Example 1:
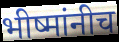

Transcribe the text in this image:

भीष्मांनीच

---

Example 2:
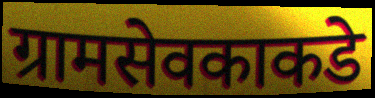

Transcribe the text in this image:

ग्रामसेवकाकडे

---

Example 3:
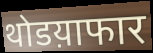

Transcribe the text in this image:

थोडय़ाफार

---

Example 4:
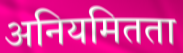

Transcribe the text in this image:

अनियमितता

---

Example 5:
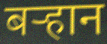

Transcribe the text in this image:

बऱ्हान